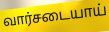
வார்சடையாய்